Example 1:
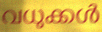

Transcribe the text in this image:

വധുക്കൾ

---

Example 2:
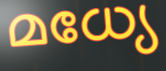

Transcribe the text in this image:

മധ്യേ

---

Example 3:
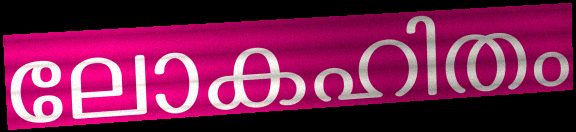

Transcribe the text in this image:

ലോകഹിതം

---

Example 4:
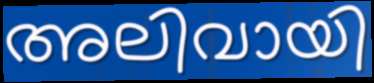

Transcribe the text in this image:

അലിവായി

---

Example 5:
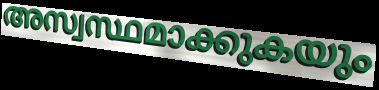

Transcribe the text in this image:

അസ്വസ്ഥമാക്കുകയും